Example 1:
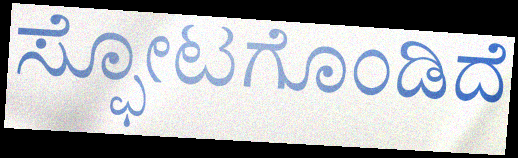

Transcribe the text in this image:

ಸ್ಫೋಟಗೊಂಡಿದೆ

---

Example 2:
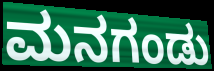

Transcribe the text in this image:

ಮನಗಂಡು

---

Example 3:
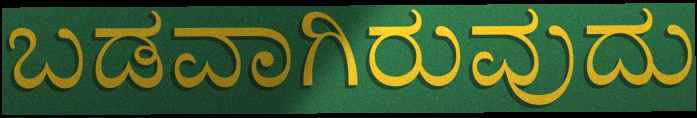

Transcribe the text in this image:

ಬಡವಾಗಿರುವುದು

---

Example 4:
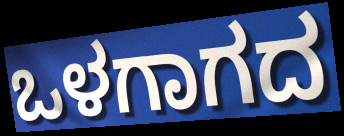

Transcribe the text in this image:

ಒಳಗಾಗದ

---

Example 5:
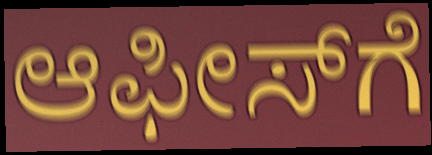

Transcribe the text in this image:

ಆಫೀಸ್‍ಗೆ